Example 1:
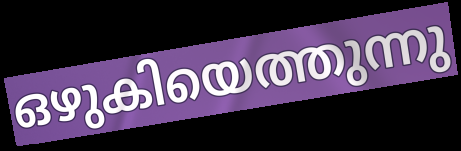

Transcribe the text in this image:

ഒഴുകിയെത്തുന്നു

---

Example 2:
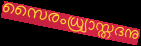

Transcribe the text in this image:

സൈരംധ്ര്യാസ്തദനു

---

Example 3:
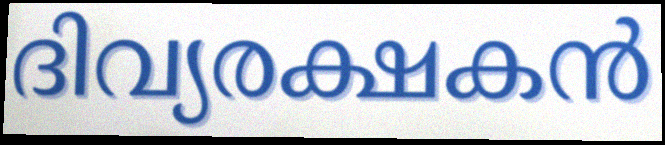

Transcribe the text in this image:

ദിവ്യരക്ഷകൻ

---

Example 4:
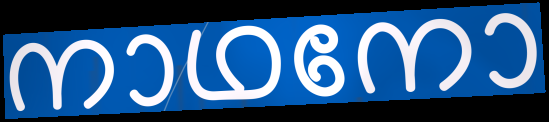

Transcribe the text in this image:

നാഥനോ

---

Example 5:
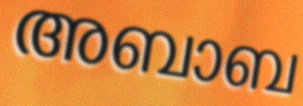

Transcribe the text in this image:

അബാബ